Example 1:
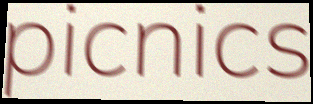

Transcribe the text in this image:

picnics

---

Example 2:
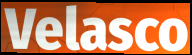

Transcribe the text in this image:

Velasco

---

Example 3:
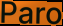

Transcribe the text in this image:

Paro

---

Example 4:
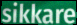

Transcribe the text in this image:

sikkare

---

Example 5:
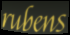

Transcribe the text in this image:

rubens